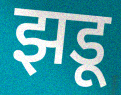
झडू